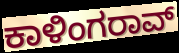
ಕಾಳಿಂಗರಾವ್